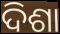
ଦିଶା